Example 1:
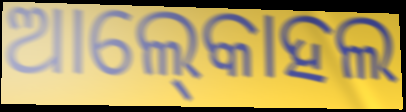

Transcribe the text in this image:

ଆଲ୍‍କୋହଲ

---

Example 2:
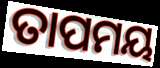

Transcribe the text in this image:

ତାପମୟ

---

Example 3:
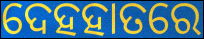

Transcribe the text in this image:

ଦେହହାତରେ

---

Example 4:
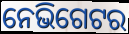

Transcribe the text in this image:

ନେଭିଗେଟର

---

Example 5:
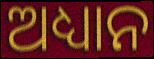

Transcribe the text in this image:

ଅଧ୍ୟାନ